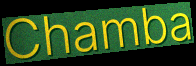
Chamba